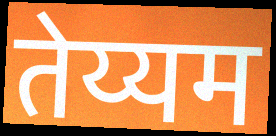
तेय्यम